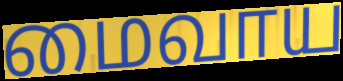
மைவாய